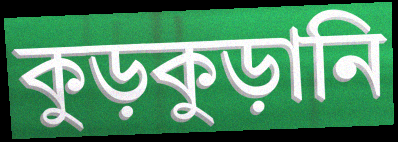
কুড়কুড়ানি